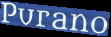
Purano